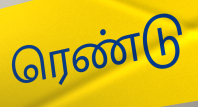
ரெண்டு